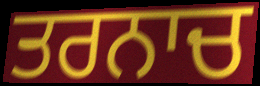
ਤਰਨਾਚ